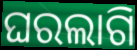
ଘରଲାଗି